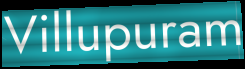
Villupuram